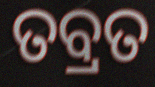
ତବ୍ରତ